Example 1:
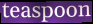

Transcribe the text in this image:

teaspoon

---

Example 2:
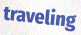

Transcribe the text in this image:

traveling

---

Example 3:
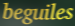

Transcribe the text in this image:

beguiles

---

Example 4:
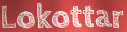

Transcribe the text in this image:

Lokottar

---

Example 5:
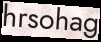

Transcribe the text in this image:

hrsohag